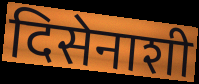
दिसेनाशी